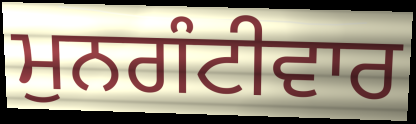
ਮੁਨਗੰਟੀਵਾਰ